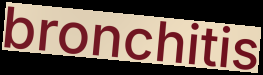
bronchitis